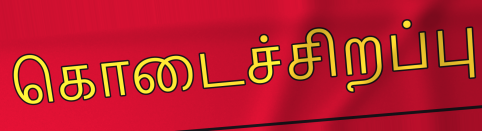
கொடைச்சிறப்பு